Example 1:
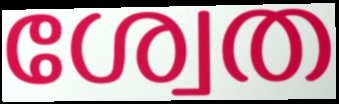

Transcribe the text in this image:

ശ്വേത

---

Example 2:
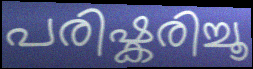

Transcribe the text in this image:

പരിഷ്കരിച്ചൂ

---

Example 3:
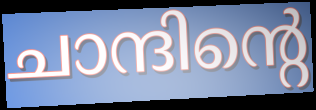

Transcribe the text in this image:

ചാന്ദിന്റെ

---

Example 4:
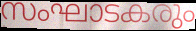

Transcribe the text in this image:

സംഘാടകരും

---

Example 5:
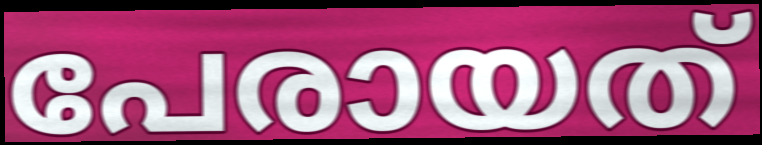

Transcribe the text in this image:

പേരായത്